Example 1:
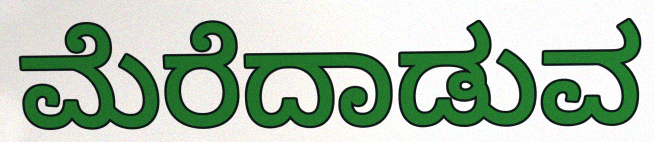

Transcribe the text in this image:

ಮೆರೆದಾಡುವ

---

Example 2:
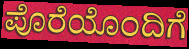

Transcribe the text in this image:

ಪೊರೆಯೊಂದಿಗೆ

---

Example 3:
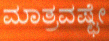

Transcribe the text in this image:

ಮಾತ್ರವಷ್ಟೇ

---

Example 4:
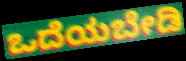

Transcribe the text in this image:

ಒದೆಯಬೇಡಿ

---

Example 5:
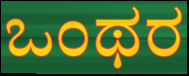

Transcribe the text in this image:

ಒಂಥರ